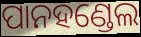
ପାନହଣ୍ଡେଲ